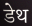
डेथ